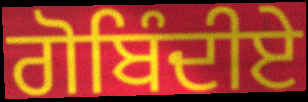
ਗੋਬਿੰਦੀਏ